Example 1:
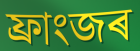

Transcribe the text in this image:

ফ্ৰাংজৰ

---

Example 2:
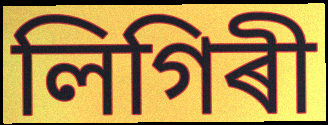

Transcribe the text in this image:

লিগিৰী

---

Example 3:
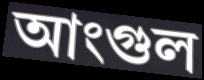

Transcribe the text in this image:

আংগুল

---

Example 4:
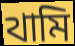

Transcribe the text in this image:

থামি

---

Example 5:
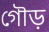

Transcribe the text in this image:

গৌড়